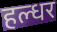
हल्धर